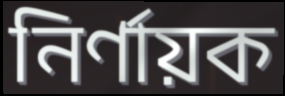
নির্ণায়ক